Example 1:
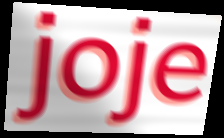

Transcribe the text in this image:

joje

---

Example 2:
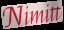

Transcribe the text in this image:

Nimitt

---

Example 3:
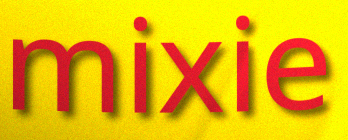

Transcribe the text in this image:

mixie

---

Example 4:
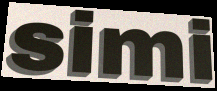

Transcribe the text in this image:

simi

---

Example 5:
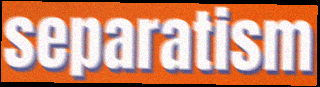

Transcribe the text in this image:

separatism